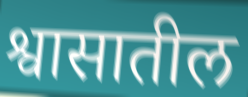
श्वासातील